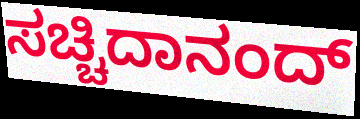
ಸಚ್ಚಿದಾನಂದ್